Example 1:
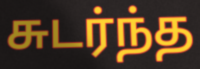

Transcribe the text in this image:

சுடர்ந்த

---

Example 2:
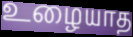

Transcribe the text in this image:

உழையாத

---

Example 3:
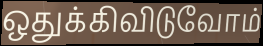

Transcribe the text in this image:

ஒதுக்கிவிடுவோம்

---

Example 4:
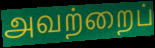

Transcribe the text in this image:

அவற்றைப்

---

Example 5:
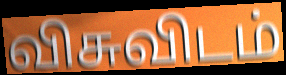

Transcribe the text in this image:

விசுவிடம்